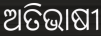
ଅତିଭାଷୀ